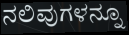
ನಲಿವುಗಳನ್ನೂ